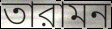
তারামন